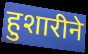
हुशारीने